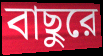
বাছুরে